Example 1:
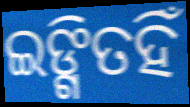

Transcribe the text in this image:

ଇଙ୍ଗିତହିଁ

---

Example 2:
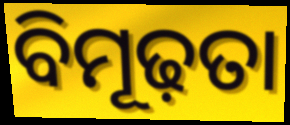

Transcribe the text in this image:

ବିମୂଢ଼ତା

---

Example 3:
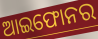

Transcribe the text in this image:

ଆଇଫୋନର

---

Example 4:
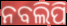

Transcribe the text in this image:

ନବଲିପି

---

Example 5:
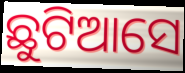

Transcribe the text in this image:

ଛୁଟିଆସେ